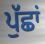
ਪੁੱਛਾਂ